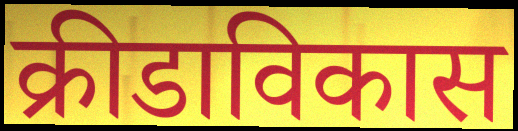
क्रीडाविकास